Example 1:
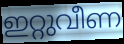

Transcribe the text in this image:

ഇറ്റുവീണ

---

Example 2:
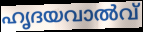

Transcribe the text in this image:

ഹൃദയവാൽവ്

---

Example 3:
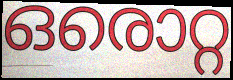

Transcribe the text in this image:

ഒരൊറ്റ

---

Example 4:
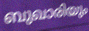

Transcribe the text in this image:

ബുഖാരിയും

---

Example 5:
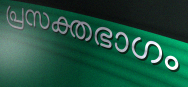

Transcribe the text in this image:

പ്രസക്തഭാഗം